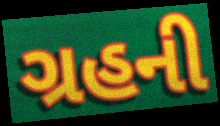
ગ્રહની